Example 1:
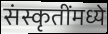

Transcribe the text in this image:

संस्कृतींमध्ये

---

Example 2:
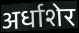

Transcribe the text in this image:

अर्धाशेर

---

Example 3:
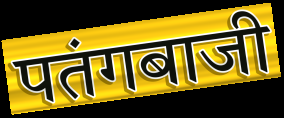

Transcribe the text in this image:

पतंगबाजी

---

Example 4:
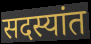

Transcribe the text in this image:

सदस्यांत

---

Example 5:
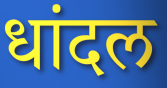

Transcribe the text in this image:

धांदल